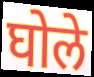
घोले